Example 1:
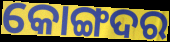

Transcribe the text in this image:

କୋଙ୍ଗଦର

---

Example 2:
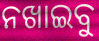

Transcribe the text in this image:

ନଖାଇବୁ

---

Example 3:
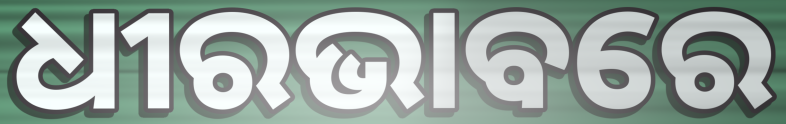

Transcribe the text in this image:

ଧୀରଭାବରେ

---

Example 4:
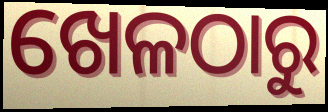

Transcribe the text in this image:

ଖେଳଠାରୁ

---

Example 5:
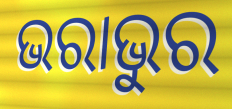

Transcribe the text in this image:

ଭରାଭୁର